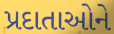
પ્રદાતાઓને